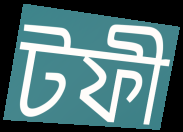
টফী